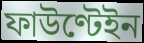
ফাউণ্টেইন